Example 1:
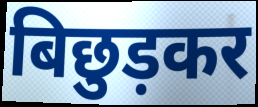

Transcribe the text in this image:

बिछुड़कर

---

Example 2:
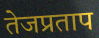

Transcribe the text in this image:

तेजप्रताप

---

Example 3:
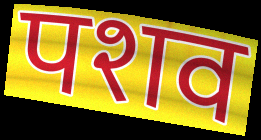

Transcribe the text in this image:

पशव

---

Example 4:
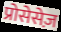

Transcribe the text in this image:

प्रोसेसेज़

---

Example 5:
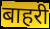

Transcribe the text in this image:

बाहरी